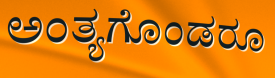
ಅಂತ್ಯಗೊಂಡರೂ